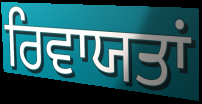
ਰਿਵਾਯਤਾਂ